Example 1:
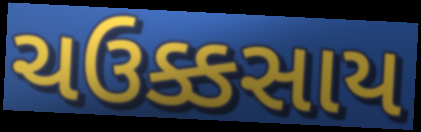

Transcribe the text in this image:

ચઉક્કસાય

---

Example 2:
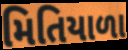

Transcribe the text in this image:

મિતિયાળા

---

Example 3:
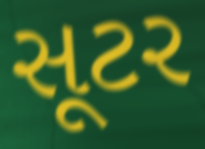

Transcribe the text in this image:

સૂટર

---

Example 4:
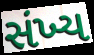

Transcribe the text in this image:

સંખ્ય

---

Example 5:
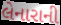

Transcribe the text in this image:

લેનારાની